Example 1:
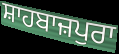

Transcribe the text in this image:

ਸ਼ਾਹਬਾਜ਼ਪੁਰਾ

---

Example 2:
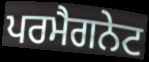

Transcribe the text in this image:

ਪਰਮੈਗਨੇਟ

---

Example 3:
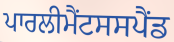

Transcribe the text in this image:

ਪਾਰਲੀਮੈਂਟਸਸਪੈਂਡ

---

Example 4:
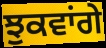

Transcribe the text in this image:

ਝੁਕਵਾਂਗੇ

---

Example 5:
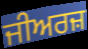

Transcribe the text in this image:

ਜੀਅਰਜ਼